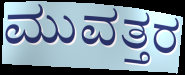
ಮುವತ್ತರ